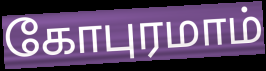
கோபுரமாம்